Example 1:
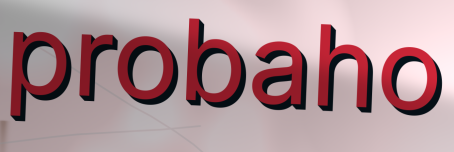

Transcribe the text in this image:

probaho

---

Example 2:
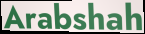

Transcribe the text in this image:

Arabshah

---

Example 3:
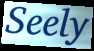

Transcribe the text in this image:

Seely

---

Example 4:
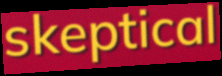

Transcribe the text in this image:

skeptical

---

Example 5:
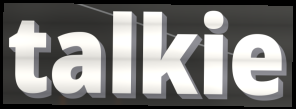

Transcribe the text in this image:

talkie